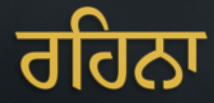
ਰਹਿਨਾ